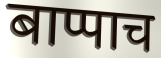
बाप्पाच